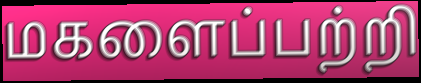
மகளைப்பற்றி